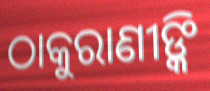
ଠାକୁରାଣୀଙ୍କି